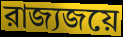
রাজ্যজয়ে